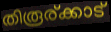
തിരൂര്ക്കാട്